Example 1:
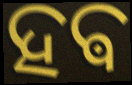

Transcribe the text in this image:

ହଵ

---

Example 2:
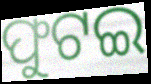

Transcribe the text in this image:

ଫୁଟଇ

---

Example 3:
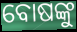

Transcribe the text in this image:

ବୋଷଙ୍କୁ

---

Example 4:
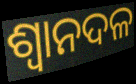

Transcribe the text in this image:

ଶ୍ୱାନଦଳ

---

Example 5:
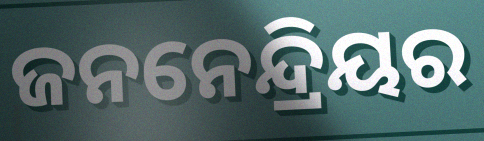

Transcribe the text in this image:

ଜନନେନ୍ଦ୍ରିୟର